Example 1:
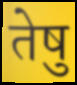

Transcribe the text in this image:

तेषु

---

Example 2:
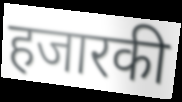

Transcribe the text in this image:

हजारकी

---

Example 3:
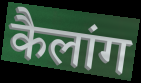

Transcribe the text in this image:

कैलांग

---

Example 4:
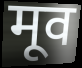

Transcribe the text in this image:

मूव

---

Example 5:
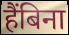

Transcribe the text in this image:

हैंबिना